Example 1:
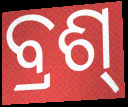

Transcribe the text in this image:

ବ୍ରଶ୍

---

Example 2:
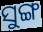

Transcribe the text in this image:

ସୁଙ୍ଗ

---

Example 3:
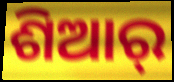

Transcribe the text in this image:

ଶିଆର୍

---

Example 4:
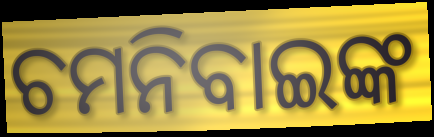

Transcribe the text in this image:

ଚମନିବାଇଙ୍କ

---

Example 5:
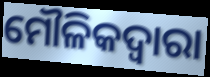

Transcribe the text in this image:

ମୌଳିକଦ୍ଵାରା